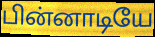
பின்னாடியே